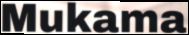
Mukama